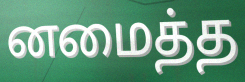
னமைத்த